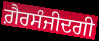
ਗ਼ੈਰਸੰਜੀਦਗੀ